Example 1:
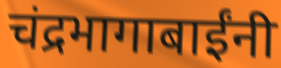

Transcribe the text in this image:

चंद्रभागाबाईंनी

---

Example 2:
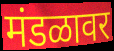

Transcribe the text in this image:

मंडळावर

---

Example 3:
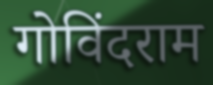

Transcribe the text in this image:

गोविंदराम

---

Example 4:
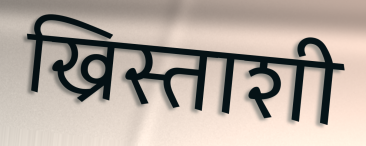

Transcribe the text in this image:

ख्रिस्ताशी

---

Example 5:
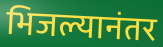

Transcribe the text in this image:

भिजल्यानंतर